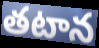
తటాన